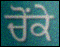
ਚੋਂਕੇ